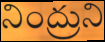
నింద్రుని